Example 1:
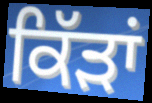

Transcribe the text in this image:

ਕਿੱੜਾਂ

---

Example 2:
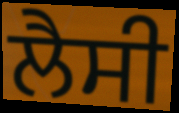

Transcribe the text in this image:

ਲੈਸੀ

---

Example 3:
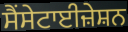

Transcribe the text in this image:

ਸੈਂਸੇਟਾਈਜ਼ੇਸ਼ਨ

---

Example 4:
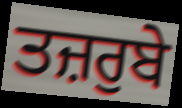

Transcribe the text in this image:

ਤਜ਼ਰੁਬੇ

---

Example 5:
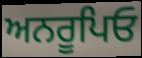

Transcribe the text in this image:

ਅਨਰੂਪਿਓ